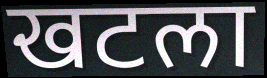
खटला